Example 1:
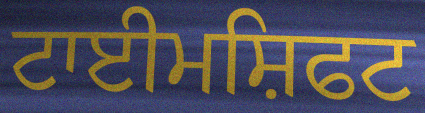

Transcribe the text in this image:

ਟਾਈਮਸ਼ਿਫਟ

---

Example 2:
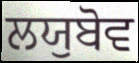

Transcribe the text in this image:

ਲਯੁਬੋਵ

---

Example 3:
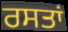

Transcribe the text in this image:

ਰਸਤਾਂ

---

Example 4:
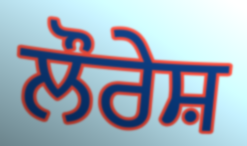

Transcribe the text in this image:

ਲੌਰੇਸ਼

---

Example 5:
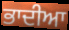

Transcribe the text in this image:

ਭਾਦੀਆ